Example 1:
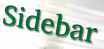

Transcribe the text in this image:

Sidebar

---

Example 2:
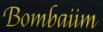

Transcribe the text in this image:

Bombaiim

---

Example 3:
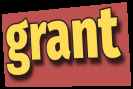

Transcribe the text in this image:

grant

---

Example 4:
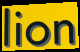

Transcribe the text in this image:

lion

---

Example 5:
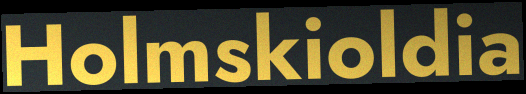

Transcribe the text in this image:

Holmskioldia